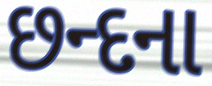
છન્દના